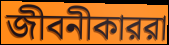
জীবনীকাররা